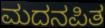
ಮದನಪಿತ